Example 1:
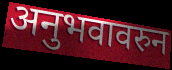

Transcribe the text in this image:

अनुभवावरुन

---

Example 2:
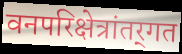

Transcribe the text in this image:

वनपरिक्षेत्रांतर्गत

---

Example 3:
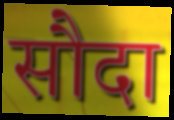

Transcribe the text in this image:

सौदा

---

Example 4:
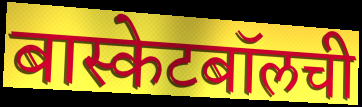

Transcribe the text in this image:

बास्केटबॉलची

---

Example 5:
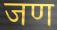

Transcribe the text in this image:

जण